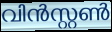
വിൻസ്റ്റൺ